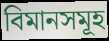
বিমানসমূহ